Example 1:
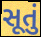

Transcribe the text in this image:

સૂતું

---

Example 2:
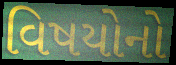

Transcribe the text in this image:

વિષયોનો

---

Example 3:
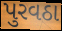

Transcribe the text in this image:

પુરવઠા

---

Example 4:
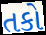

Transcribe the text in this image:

તકો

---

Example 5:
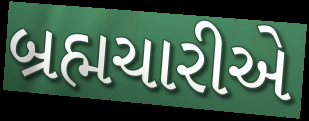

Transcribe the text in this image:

બ્રહ્મચારીએ